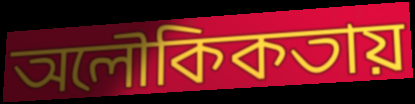
অলৌকিকতায়